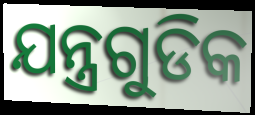
ଯନ୍ତ୍ରଗୁଡିକ